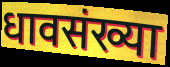
धावसंख्या